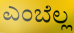
ಎಂಬೆಲ್ಲ